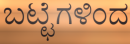
ಬಟ್ಟೆಗಳಿಂದ